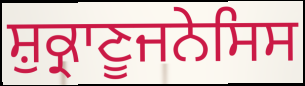
ਸ਼ੁਕ੍ਰਾਣੂਜਨੇਸਿਸ